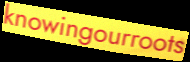
knowingourroots